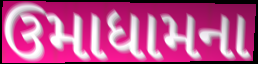
ઉમાધામના